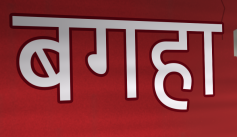
बगहा